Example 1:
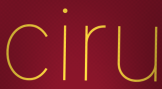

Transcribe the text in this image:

ciru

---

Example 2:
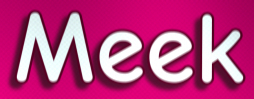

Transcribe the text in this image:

Meek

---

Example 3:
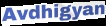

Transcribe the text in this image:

Avdhigyan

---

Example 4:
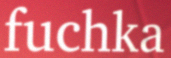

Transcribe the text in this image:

fuchka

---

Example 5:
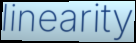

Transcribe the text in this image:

linearity